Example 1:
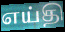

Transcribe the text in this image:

எய்தி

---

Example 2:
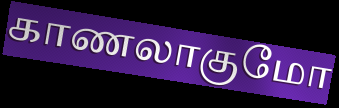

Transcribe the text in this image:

காணலாகுமோ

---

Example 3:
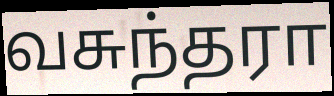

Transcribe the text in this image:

வசுந்தரா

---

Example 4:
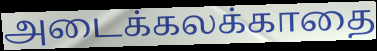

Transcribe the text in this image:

அடைக்கலக்காதை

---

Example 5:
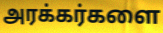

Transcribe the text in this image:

அரக்கர்களை